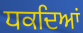
ਧਕਦਿਆਂ